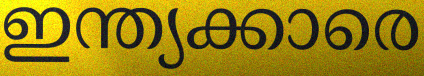
ഇന്ത്യക്കാരെ